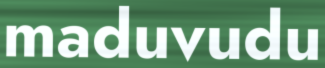
maduvudu